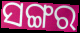
ସଙ୍ଗର